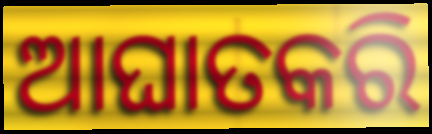
ଆଘାତକରି